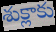
శుక్లాకు